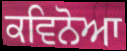
ਕਵਿਨੋਆ